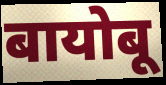
बायोबू